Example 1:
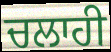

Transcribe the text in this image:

ਚਲਾਹੀ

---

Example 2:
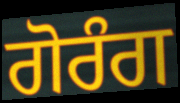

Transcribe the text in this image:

ਗੋਰੰਗ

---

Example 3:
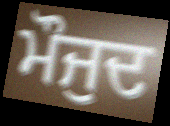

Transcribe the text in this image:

ਮੌਜੁਦ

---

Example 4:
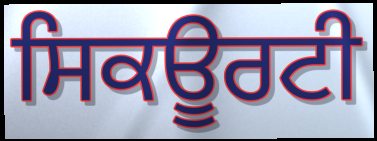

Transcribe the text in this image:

ਸਿਕਊਰਟੀ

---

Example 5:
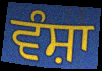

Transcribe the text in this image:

ਵੰਸ਼ਾ